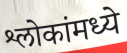
श्लोकांमध्ये